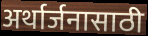
अर्थार्जनासाठी